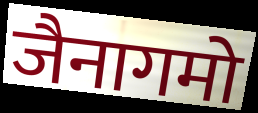
जैनागमो